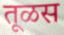
तूळस